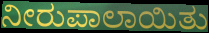
ನೀರುಪಾಲಾಯಿತು